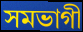
সমভাগী